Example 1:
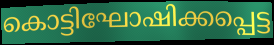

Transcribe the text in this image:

കൊട്ടിഘോഷിക്കപ്പെട്ട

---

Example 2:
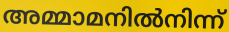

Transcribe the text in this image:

അമ്മാമനിൽനിന്ന്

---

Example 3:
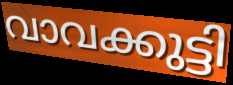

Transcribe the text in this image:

വാവക്കുട്ടി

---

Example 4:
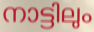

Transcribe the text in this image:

നാട്ടിലും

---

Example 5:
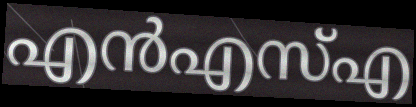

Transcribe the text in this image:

എൻഎസ്എ